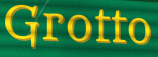
Grotto